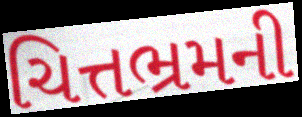
ચિત્તભ્રમની